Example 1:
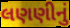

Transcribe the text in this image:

લણણીનું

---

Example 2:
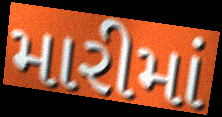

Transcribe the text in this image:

મારીમાં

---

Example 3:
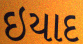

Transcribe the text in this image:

ઇયાદ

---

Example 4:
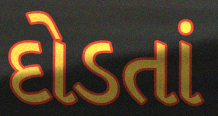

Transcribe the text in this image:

દોડતાં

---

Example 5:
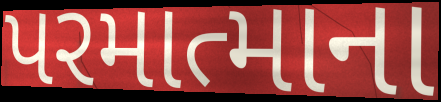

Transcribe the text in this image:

પરમાત્માના